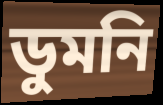
ডুমনি